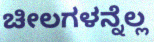
ಚೀಲಗಳನ್ನೆಲ್ಲ